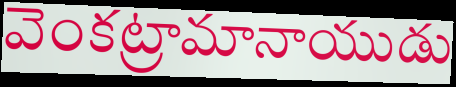
వెంకట్రామానాయుడు